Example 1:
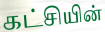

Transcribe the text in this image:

கட்சியின்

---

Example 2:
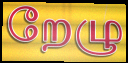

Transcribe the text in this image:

றேழு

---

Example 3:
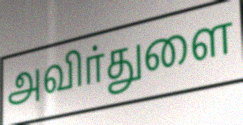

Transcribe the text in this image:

அவிர்துளை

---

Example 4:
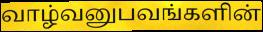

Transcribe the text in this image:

வாழ்வனுபவங்களின்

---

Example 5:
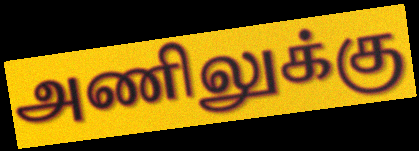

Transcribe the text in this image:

அணிலுக்கு